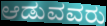
ಆಡುವವರು